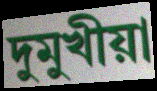
দুমুখীয়া